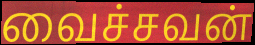
வைச்சவன்